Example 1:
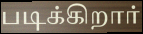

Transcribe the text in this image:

படிக்கிறார்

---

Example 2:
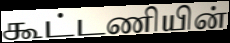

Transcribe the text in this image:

கூட்டணியின்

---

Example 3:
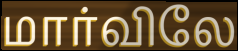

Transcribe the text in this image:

மார்விலே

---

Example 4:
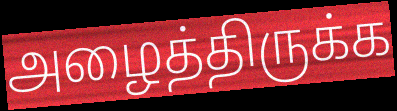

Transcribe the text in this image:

அழைத்திருக்க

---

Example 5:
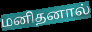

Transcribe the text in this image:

மனிதனால்